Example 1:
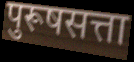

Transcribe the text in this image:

पुरूषसत्ता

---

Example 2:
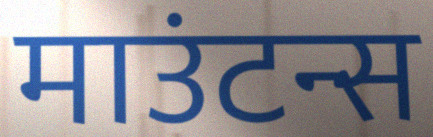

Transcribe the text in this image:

माउंटन्स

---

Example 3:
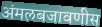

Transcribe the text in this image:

अंमलबजावणीस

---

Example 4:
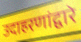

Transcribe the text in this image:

उदाहरणांद्वारे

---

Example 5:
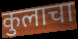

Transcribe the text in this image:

कुलाचा